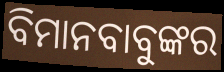
ବିମାନବାବୁଙ୍କର